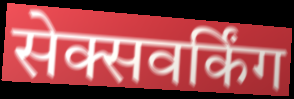
सेक्सवर्किंग